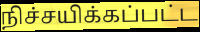
நிச்சயிக்கப்பட்ட